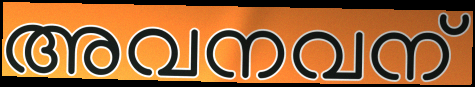
അവനവന്